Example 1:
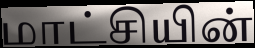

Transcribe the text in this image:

மாட்சியின்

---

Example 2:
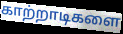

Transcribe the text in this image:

காற்றாடிகளை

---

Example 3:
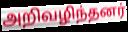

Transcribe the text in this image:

அறிவழிந்தனர்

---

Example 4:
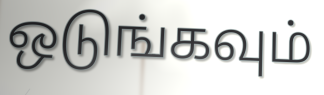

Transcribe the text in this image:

ஒடுங்கவும்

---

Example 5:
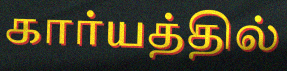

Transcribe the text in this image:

கார்யத்தில்